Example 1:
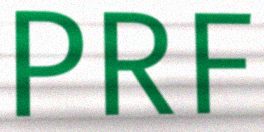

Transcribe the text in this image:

PRF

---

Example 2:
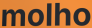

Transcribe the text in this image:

molho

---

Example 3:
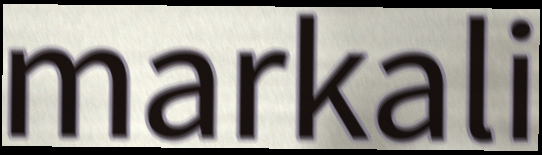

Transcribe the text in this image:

markali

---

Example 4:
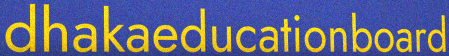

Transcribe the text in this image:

dhakaeducationboard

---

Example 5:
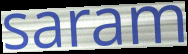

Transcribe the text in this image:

saram